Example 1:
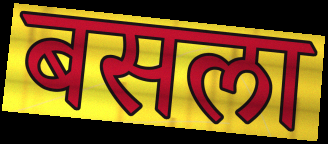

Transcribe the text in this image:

बसला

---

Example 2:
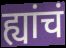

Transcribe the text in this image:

ह्यांचं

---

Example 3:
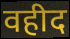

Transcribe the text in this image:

वहीद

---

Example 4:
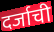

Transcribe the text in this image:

दर्जाची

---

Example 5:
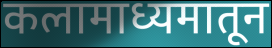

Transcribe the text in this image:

कलामाध्यमातून